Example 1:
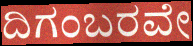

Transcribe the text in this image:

ದಿಗಂಬರವೇ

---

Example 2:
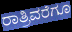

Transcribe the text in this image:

ರಾತ್ರಿವರೆಗೂ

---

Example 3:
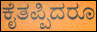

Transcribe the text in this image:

ಕೈತಪ್ಪಿದರೂ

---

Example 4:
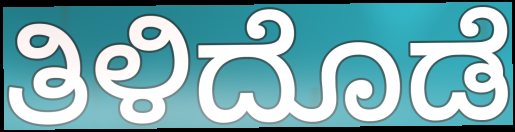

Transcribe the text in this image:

ತಿಳಿದೊಡೆ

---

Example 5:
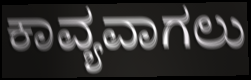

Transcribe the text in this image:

ಕಾವ್ಯವಾಗಲು